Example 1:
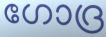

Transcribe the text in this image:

ഗോദ്ര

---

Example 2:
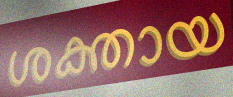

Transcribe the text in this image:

ശക്തായ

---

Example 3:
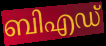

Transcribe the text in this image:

ബിഎഡ്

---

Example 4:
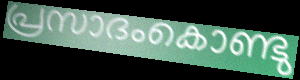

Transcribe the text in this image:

പ്രസാദംകൊണ്ടു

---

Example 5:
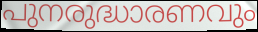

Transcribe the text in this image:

പുനരുദ്ധാരണവും